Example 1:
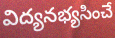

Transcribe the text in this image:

విద్యనభ్యసించే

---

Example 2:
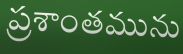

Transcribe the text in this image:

ప్రశాంతమును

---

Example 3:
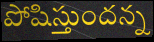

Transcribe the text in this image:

పోషిస్తుందన్న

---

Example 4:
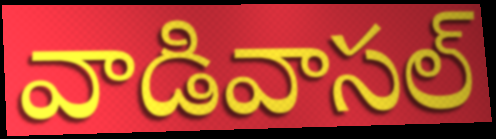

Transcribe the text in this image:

వాడివాసల్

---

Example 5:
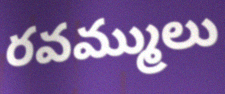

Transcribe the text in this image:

రవమ్ములు